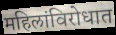
महिलांविरोधात